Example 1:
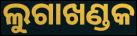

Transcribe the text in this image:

ଲୁଗାଖଣ୍ଡକ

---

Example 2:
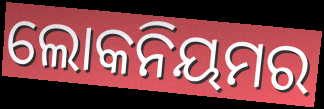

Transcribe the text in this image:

ଲୋକନିୟମର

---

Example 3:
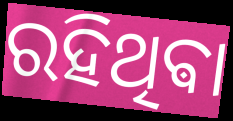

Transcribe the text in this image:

ରହିଥିଵା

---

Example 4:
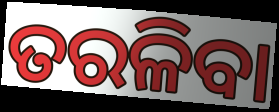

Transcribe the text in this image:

ତରଳିବା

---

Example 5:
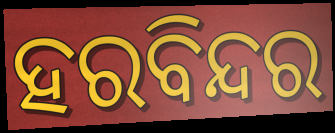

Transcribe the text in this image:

ହରବିନ୍ଦର